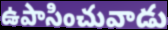
ఉపాసించువాడు